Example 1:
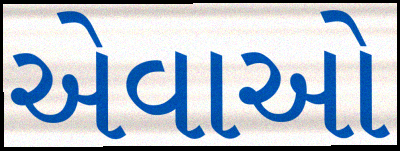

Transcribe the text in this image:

એવાઓ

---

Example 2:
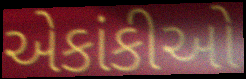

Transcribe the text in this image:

એકાંકીઓ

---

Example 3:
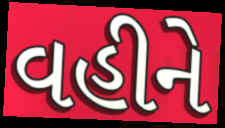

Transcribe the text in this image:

વહીને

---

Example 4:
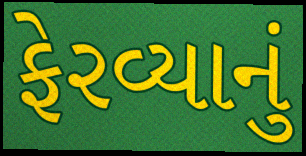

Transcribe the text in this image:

ફેરવ્યાનું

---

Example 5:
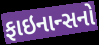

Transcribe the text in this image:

ફાઇનાન્સનો